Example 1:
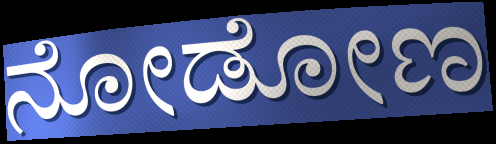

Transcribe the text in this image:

ನೋಡೋಣ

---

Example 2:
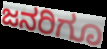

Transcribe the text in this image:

ಜನರಿಗೂ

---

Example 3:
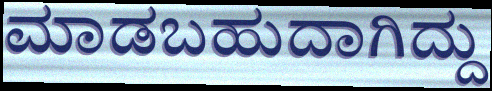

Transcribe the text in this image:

ಮಾಡಬಹುದಾಗಿದ್ದು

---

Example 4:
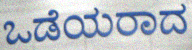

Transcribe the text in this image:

ಒಡೆಯರಾದ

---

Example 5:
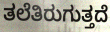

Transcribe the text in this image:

ತಲೆತಿರುಗುತ್ತದೆ